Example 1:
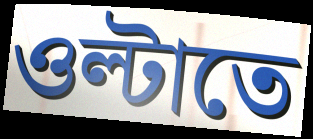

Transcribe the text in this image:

ওল্টাতে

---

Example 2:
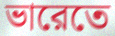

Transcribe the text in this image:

ভারেতে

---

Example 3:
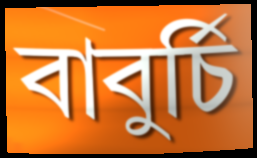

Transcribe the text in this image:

বাবুর্চি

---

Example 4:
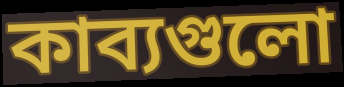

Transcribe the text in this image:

কাব্যগুলো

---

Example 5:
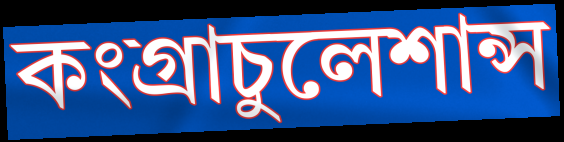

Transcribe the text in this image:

কংগ্রাচুলেশান্স